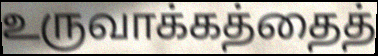
உருவாக்கத்தைத்